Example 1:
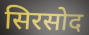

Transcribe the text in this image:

सिरसोद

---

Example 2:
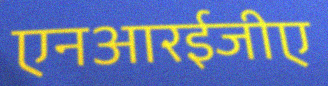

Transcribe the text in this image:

एनआरईजीए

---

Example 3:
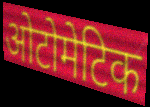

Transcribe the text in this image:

ओटोमेटिक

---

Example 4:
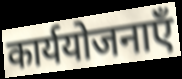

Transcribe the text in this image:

कार्ययोजनाएँ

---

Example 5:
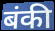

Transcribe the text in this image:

बंकी